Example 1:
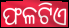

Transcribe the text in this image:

ଫଳଟିଏ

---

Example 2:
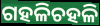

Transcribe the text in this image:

ଗହଳିଚହଳି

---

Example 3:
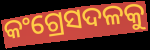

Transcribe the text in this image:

କଂଗ୍ରେସଦଳକୁ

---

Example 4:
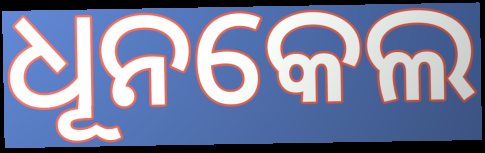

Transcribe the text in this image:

ଧୂନକେଲ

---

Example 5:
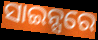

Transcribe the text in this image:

ସାଇନ୍ସରେ